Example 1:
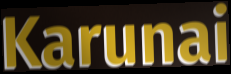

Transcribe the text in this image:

Karunai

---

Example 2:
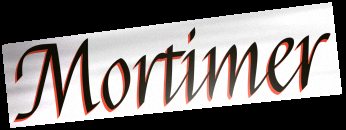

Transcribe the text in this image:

Mortimer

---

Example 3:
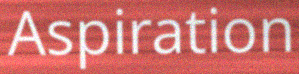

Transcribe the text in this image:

Aspiration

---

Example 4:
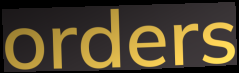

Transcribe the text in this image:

orders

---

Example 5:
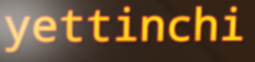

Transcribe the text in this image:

yettinchi